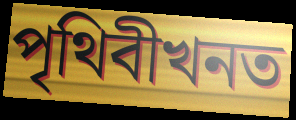
পৃথিবীখনত